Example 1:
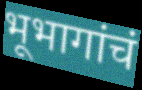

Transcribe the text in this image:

भूभागांचं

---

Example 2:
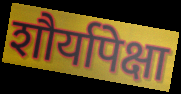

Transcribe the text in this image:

शौर्यापेक्षा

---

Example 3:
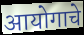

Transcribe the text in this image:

आयोगाचे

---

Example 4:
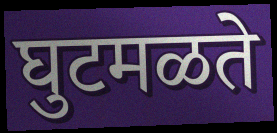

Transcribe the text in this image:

घुटमळते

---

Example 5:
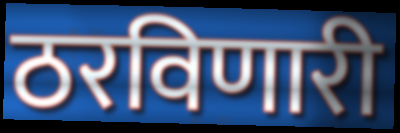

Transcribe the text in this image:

ठरविणारी